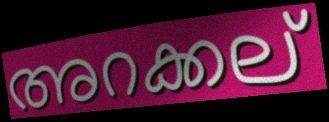
അറക്കല്